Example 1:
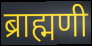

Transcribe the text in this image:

ब्राह्मणी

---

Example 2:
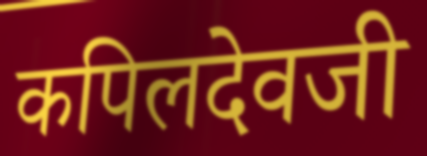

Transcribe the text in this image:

कपिलदेवजी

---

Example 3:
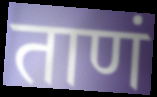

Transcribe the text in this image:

ताणं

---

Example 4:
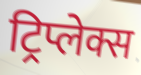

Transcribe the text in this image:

ट्रिप्लेक्स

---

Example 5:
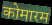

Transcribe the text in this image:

कोमारम